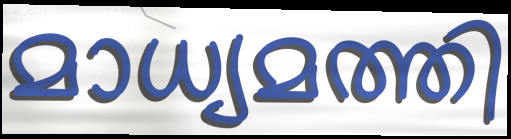
മാധ്യമത്തി